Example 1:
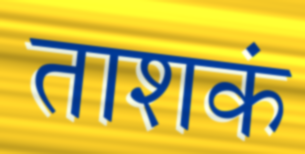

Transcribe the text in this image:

ताशकं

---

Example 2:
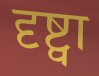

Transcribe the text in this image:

दृष्ट्वा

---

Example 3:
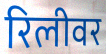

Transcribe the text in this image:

रिलीवर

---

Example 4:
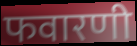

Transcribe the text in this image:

फवारणी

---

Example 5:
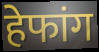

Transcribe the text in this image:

हेफांग